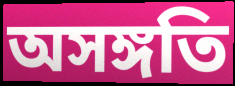
অসঙ্গতি